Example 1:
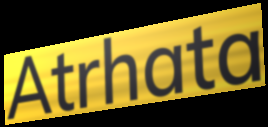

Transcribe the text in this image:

Atrhata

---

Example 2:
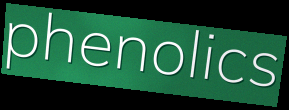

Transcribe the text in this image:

phenolics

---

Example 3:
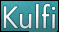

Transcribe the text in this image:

Kulfi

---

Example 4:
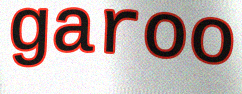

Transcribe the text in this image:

garoo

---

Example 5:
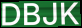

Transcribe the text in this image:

DBJK